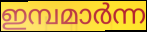
ഇമ്പമാർന്ന